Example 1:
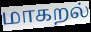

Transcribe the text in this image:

மாகறல்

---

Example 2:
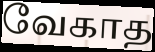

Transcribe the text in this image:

வேகாத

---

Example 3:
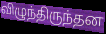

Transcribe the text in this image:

விழுந்திருந்தன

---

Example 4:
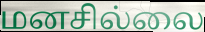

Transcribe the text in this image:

மனசில்லை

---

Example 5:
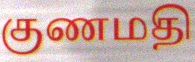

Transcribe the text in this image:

குணமதி